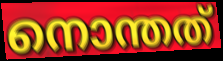
നൊന്തത്